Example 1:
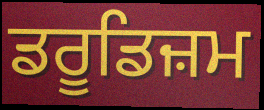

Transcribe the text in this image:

ਡਰੂਡਿਜ਼ਮ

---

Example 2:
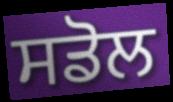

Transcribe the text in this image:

ਸਡੋਲ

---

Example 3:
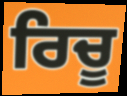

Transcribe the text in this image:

ਰਿਚੂ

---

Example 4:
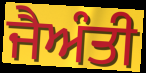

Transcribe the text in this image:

ਜੈਅੰਤੀ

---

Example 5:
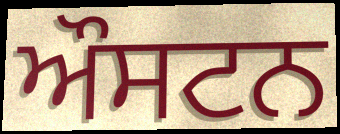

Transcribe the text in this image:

ਔਸਟਨ